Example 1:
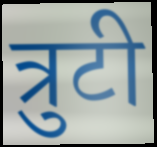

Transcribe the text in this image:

त्रुटी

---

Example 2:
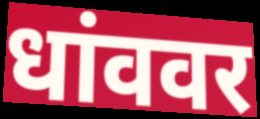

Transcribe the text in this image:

धांववर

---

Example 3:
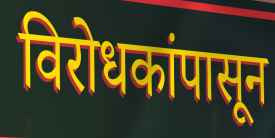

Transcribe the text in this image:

विरोधकांपासून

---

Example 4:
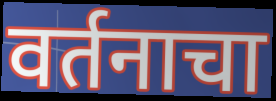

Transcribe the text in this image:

वर्तनाचा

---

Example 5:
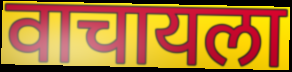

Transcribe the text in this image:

वाचायला